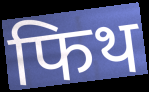
फिथ